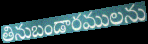
తినుబండారములను